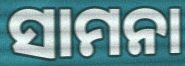
ସାମନା